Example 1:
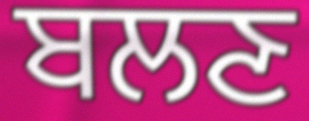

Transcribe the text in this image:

ਬਲਣ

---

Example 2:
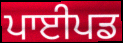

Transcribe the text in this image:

ਪਾਈਪਡ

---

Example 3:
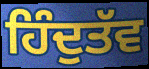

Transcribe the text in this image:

ਹਿੰਦੁਤੱਵ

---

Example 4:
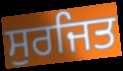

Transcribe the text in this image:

ਸੁਰਜਿਤ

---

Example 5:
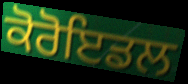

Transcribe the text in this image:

ਕੋਰੋਇਡਲ